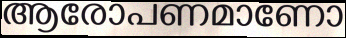
ആരോപണമാണോ